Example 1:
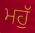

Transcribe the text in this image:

ਮਹੁੱ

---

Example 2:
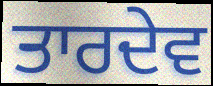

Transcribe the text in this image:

ਤਾਰਦੇਵ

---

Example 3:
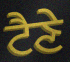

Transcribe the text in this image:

ਟੈਣੇ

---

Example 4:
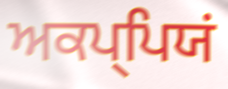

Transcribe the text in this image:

ਅਕਪ੍ਪਿਯਂ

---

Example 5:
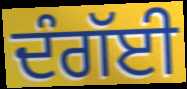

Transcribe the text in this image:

ਦੰਗੱਈ